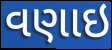
વણાઇ